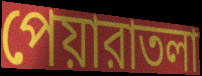
পেয়ারাতলা